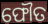
ଫୌତ